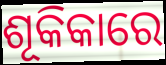
ଶୂକିକାରେ